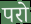
परो